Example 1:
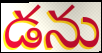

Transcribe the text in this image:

డను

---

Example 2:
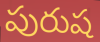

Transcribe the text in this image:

పురుష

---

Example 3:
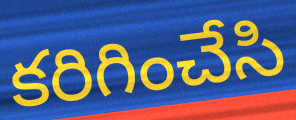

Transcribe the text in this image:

కరిగించేసి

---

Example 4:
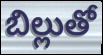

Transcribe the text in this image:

బిల్లుతో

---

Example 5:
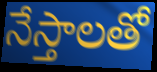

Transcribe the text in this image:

నేస్తాలతో